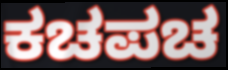
ಕಚಪಚ